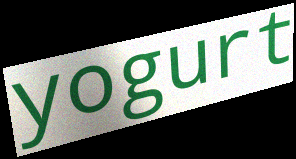
yogurt